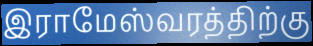
இராமேஸ்வரத்திற்கு